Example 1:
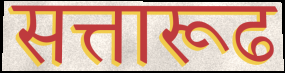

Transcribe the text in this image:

सत्तारूढ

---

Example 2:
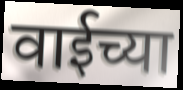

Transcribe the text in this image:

वाईच्या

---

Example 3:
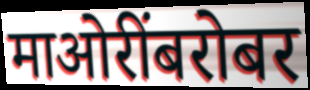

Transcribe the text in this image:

माओरींबरोबर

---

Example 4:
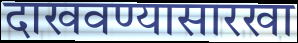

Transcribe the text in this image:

दाखवण्यासारखा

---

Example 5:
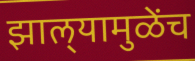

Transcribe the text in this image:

झाल्यामुळेंच